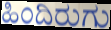
ಹಿಂದಿರುಗು